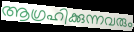
ആഗ്രഹിക്കുന്നവരും